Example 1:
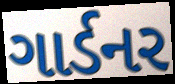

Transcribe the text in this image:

ગાર્ડનર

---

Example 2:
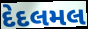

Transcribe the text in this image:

દેદલમલ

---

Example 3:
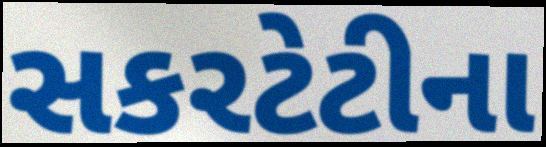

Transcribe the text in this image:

સકરટેટીના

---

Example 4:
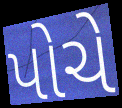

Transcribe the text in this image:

પોચે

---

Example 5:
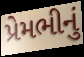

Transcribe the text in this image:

પ્રેમભીનું